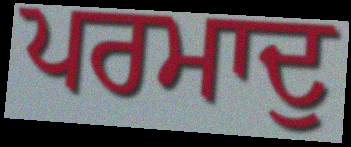
ਪਰਮਾਦੁ